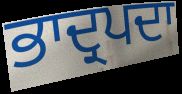
ਭਾਦ੍ਰਪਦਾ